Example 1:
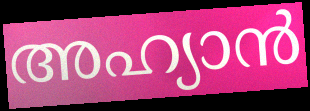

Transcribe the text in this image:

അഹ്യാൻ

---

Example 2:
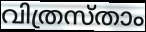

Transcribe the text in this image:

വിത്രസ്താം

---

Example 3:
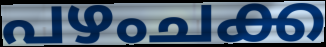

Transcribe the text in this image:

പഴംചക്ക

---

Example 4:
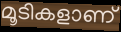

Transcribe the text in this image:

മൂടികളാണ്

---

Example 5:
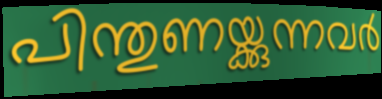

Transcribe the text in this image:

പിന്തുണയ്ക്കുന്നവർ